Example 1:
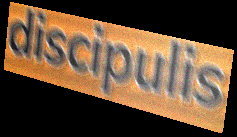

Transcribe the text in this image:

discipulis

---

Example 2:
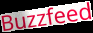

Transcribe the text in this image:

Buzzfeed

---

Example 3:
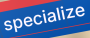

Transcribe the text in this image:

specialize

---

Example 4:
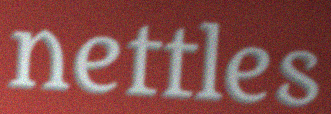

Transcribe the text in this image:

nettles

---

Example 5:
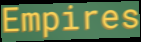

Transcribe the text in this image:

Empires